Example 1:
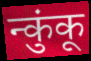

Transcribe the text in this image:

न्कुंकू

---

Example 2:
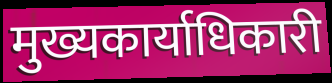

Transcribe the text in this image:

मुख्यकार्याधिकारी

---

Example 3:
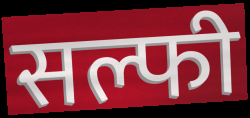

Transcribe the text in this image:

सल्फी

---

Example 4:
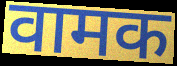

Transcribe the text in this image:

वामक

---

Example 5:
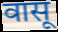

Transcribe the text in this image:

वासू